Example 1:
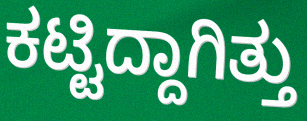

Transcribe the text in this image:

ಕಟ್ಟಿದ್ದಾಗಿತ್ತು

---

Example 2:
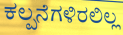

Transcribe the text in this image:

ಕಲ್ಪನೆಗಳಿರಲಿಲ್ಲ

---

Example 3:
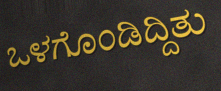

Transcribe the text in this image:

ಒಳಗೊಂಡಿದ್ದಿತು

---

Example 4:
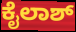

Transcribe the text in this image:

ಕೈಲಾಶ್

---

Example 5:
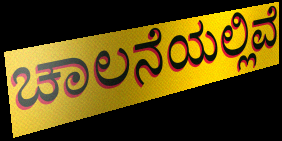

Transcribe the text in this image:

ಚಾಲನೆಯಲ್ಲಿವೆ